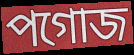
পগোজ